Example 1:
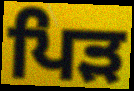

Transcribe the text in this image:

ਪਿੜ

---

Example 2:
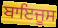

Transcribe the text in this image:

ਬਾਇਜੂਸ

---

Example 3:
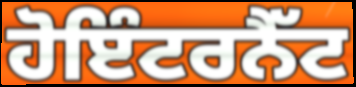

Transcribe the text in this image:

ਹੋਇੰਟਰਨੈੱਟ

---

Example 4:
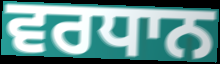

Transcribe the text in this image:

ਵਰਧਾਨ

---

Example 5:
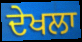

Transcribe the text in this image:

ਦੇਖਲਾ